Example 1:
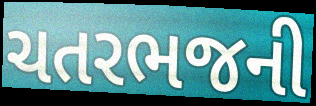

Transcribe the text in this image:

ચતરભજની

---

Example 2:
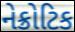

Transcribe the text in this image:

નેક્રોટિક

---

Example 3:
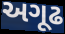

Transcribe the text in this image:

અગૂઢ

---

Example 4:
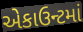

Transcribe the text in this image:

એકાઉન્ટમાં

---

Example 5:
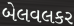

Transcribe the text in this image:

બેલવલકર